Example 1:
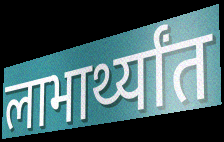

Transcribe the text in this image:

लाभार्थ्यांत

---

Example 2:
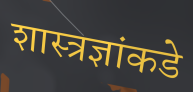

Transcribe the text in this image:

शास्त्रज्ञांकडे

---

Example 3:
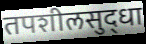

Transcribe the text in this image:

तपशीलसुद्धा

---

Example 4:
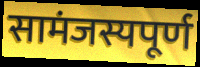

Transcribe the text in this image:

सामंजस्यपूर्ण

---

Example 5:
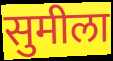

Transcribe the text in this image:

सुमीला